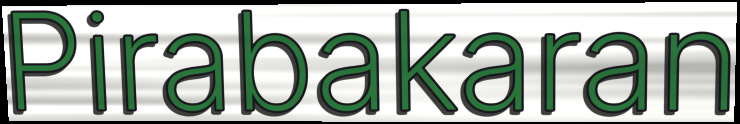
Pirabakaran